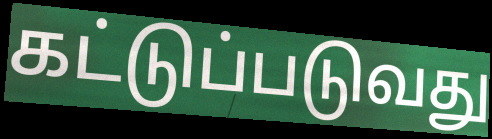
கட்டுப்படுவது